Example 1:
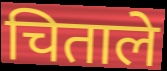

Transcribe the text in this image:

चिताले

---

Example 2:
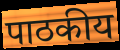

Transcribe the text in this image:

पाठकीय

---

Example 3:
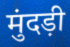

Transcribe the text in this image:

मुंदड़ी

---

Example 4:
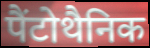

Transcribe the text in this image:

पैंटोथैनिक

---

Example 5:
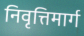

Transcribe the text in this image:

निवृत्तिमार्ग